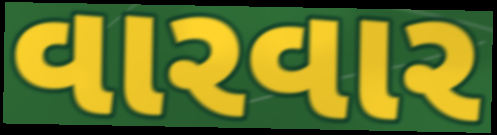
વારવાર